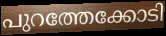
പുറത്തേക്കോടി